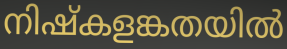
നിഷ്കളങ്കതയിൽ